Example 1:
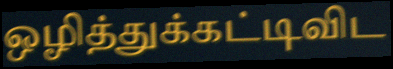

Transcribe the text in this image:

ஒழித்துக்கட்டிவிட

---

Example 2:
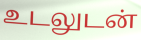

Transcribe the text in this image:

உடலுடன்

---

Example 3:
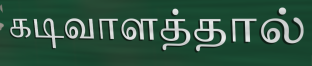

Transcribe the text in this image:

கடிவாளத்தால்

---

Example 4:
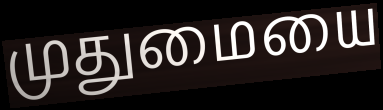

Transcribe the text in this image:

முதுமையை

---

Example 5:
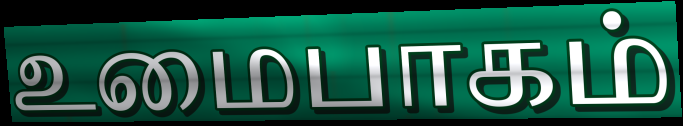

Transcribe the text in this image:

உமைபாகம்